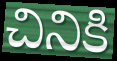
చినికి